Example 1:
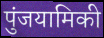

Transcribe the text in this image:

पुंजयामिकी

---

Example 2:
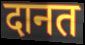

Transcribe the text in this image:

दानत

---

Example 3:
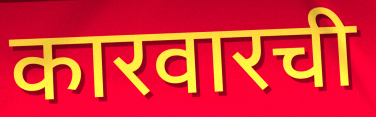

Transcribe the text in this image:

कारवारची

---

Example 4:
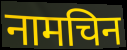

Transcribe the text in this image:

नामचिन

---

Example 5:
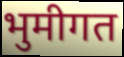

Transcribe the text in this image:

भुमीगत